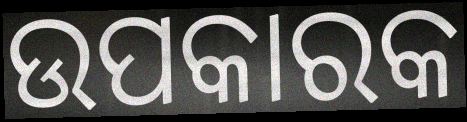
ଉପକାରକ